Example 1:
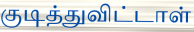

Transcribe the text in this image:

குடித்துவிட்டாள்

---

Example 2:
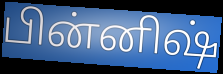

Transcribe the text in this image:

பின்னிஷ்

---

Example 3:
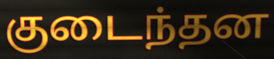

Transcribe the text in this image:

குடைந்தன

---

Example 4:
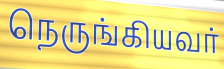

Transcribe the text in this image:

நெருங்கியவர்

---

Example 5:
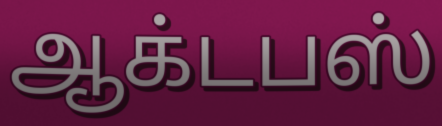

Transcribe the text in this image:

ஆக்டபஸ்